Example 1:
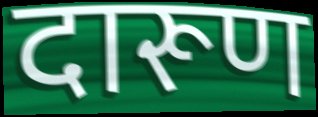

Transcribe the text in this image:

दारूण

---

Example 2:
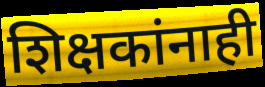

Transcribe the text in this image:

शिक्षकांनाही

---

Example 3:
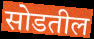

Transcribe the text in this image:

सोडतील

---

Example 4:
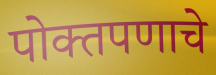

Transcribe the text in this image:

पोक्तपणाचे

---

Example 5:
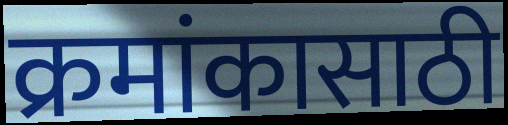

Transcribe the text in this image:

क्रमांकासाठी